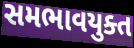
સમભાવયુક્ત